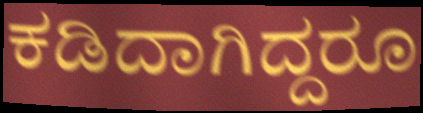
ಕಡಿದಾಗಿದ್ದರೂ